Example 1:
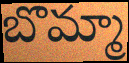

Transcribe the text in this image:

బొమ్మా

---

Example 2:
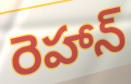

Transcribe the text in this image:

రెహాన్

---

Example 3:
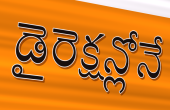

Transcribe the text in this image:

డైరెక్షన్లోనే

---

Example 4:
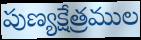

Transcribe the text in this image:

పుణ్యక్షేత్రముల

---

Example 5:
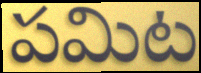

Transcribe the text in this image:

పమిట